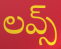
లవ్స్